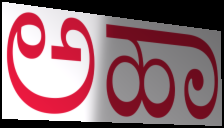
ಅಹಾ